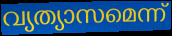
വ്യത്യാസമെന്ന്